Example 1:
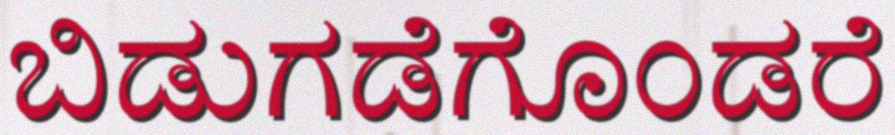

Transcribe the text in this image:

ಬಿಡುಗಡೆಗೊಂಡರೆ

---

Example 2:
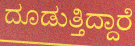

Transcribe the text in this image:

ದೂಡುತ್ತಿದ್ದಾರೆ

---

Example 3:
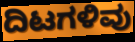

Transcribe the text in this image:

ದಿಟಗಳಿವು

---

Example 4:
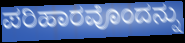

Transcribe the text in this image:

ಪರಿಹಾರವೊಂದನ್ನು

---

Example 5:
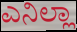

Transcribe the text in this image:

ಎನಿಲ್ಲಾ